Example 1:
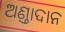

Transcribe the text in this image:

ଅଣ୍ଡାଦାନ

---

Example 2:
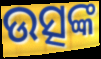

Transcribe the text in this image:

ଉତ୍ସଙ୍କ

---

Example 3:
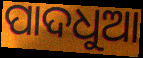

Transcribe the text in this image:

ପାଦଧୁଆ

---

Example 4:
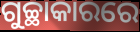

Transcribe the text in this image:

ଗୁଚ୍ଛାକାରରେ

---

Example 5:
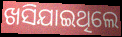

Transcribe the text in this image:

ଖସିଯାଇଥିଲେ